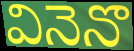
వినెనొ